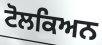
ਟੋਲਕਿਅਨ